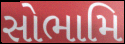
સોભામિ